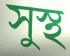
সুস্থ